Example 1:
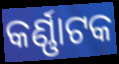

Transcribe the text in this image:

କର୍ଣ୍ଣାଟକ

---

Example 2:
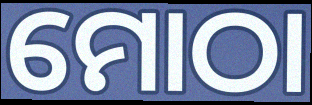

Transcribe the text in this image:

ମୋଠା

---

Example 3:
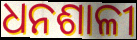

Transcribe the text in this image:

ଧନଶାଳୀ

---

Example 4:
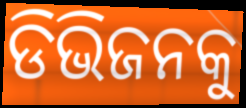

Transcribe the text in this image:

ଡିଭିଜନକୁ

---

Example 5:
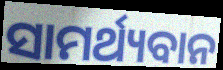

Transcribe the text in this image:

ସାମର୍ଥ୍ୟବାନ